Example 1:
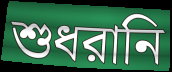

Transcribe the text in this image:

শুধরানি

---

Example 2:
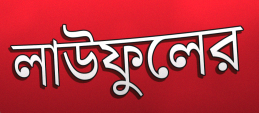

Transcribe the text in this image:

লাউফুলের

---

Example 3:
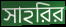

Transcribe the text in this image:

সাহরির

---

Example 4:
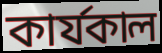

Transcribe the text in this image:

কার্যকাল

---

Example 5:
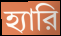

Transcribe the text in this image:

হ্যারি